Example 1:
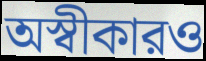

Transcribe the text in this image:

অস্বীকারও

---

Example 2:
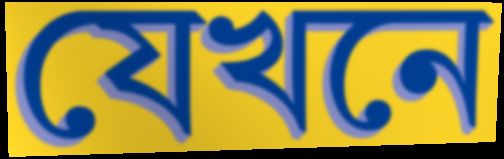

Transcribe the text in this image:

যেখনে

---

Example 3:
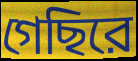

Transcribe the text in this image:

গেছিরে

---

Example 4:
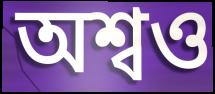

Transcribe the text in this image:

অশ্বও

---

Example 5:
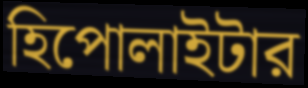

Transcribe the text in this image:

হিপোলাইটার